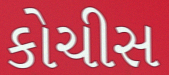
કોચીસ